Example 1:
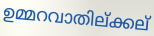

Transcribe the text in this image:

ഉമ്മറവാതില്ക്കല്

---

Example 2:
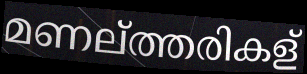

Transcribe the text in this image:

മണല്ത്തരികള്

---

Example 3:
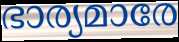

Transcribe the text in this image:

ഭാര്യമാരേ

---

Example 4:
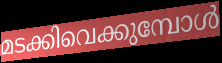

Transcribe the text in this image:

മടക്കിവെക്കുമ്പോൾ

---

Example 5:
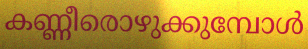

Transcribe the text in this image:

കണ്ണീരൊഴുക്കുമ്പോൾ